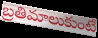
బ్రతిమాలుకుంటే